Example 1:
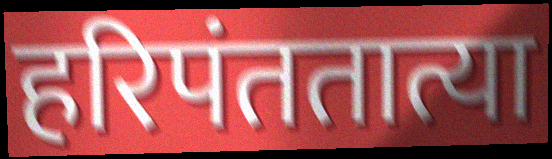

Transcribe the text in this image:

हरिपंततात्या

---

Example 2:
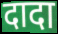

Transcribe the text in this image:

दादा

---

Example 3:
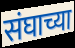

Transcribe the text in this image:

संघाच्या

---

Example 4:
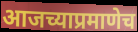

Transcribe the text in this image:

आजच्याप्रमाणेच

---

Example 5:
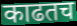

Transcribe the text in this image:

काढतच